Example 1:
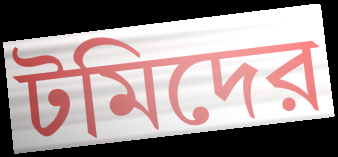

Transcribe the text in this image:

টমিদের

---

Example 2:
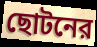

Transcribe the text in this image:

ছোটনের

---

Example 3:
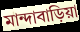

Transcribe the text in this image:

মান্দাবাড়িয়া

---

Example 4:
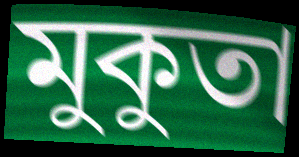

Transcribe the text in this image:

মুকুতা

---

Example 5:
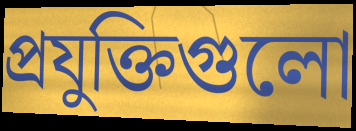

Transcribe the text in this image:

প্রযুক্তিগুলো